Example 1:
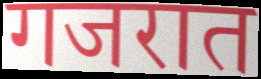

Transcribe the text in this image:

गजरात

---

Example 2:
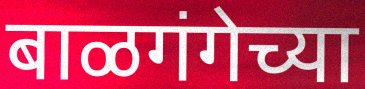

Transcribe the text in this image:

बाळगंगेच्या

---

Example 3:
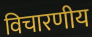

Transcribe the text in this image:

विचारणीय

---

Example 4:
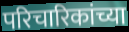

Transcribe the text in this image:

परिचारिकांच्या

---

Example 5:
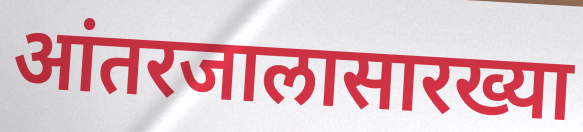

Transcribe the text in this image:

आंतरजालासारख्या